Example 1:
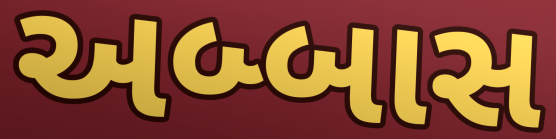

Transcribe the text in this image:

અબ્બાસ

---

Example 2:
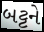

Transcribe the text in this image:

બટ્ટને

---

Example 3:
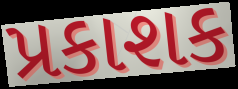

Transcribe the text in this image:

પ્રકાશક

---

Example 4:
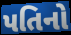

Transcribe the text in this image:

પતિનો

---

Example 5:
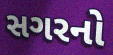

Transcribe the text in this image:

સગરનો